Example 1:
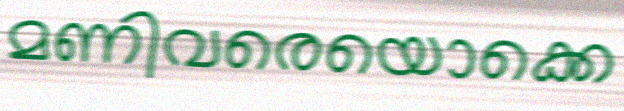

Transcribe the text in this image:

മണിവരെയൊക്കെ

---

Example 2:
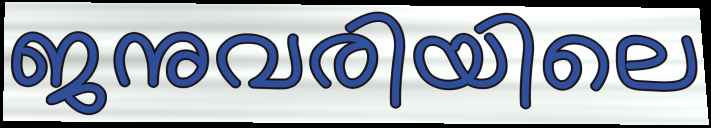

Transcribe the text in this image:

ജനുവരിയിലെ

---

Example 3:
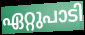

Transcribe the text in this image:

ഏറ്റുപാടി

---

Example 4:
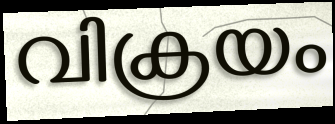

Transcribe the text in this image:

വിക്രയം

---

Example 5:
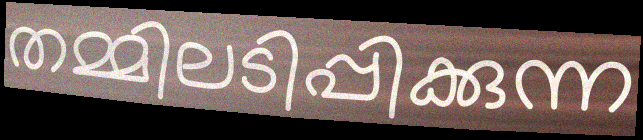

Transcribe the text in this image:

തമ്മിലടിപ്പിക്കുന്ന